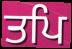
ਤਪਿ